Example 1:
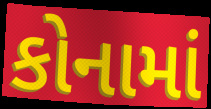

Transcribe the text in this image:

કોનામાં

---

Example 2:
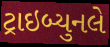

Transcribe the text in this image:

ટ્રાઇબ્યુનલે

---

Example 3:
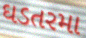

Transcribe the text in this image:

ઘડતરમા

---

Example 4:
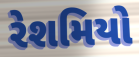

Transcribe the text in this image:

રેશમિયો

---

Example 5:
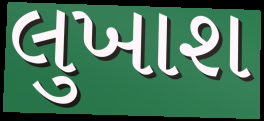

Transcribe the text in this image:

લુખાશ